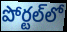
పోర్టల్‌లో